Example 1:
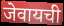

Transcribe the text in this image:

जेवायची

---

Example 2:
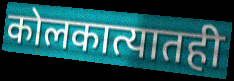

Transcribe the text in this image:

कोलकात्यातही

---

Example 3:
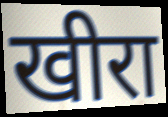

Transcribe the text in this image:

खीरा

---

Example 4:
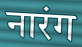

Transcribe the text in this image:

नारंग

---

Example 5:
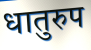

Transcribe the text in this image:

धातुरुप